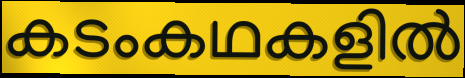
കടംകഥകളിൽ